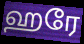
ஹரே